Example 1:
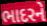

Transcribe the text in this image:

ભાદરને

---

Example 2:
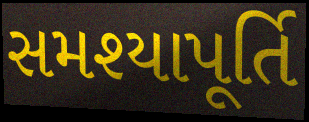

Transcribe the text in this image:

સમશ્યાપૂર્તિ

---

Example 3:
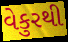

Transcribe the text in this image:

વેકુરથી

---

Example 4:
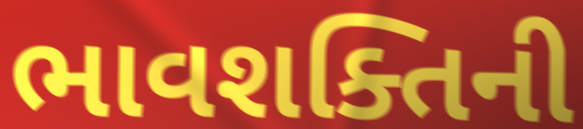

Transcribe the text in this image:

ભાવશક્તિની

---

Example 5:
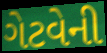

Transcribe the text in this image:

ગેટવેની